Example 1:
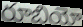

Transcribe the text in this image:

రూబియో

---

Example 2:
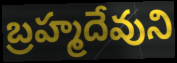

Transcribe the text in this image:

బ్రహ్మదేవుని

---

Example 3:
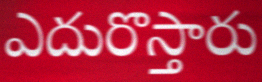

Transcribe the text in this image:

ఎదురొస్తారు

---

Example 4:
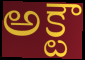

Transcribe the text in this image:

అక్టౌ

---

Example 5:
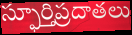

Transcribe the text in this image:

స్ఫూర్తిప్రదాతలు